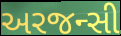
અરજન્સી